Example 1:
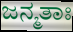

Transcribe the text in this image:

ಜನ್ಮತಾಃ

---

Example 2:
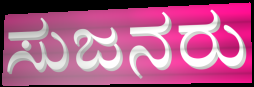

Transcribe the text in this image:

ಸುಜನರು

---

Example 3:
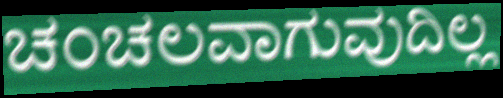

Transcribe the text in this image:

ಚಂಚಲವಾಗುವುದಿಲ್ಲ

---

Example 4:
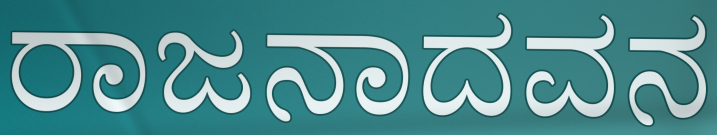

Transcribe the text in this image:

ರಾಜನಾದವನ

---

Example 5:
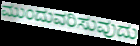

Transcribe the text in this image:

ಮುಂದುವರಿಸುವುದು